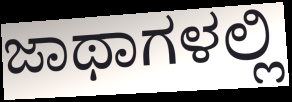
ಜಾಥಾಗಳಲ್ಲಿ